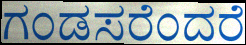
ಗಂಡಸರೆಂದರೆ